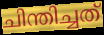
ചിന്തിച്ചത്